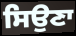
ਸਿਉਣਾ